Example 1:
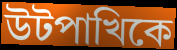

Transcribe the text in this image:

উটপাখিকে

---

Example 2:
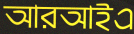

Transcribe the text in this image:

আরআইএ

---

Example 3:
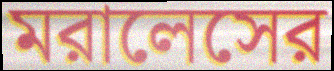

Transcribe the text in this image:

মরালেসের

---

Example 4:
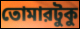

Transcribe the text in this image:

তোমারটুকু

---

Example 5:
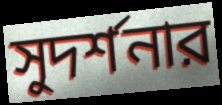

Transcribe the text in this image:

সুদর্শনার